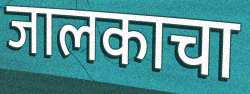
जालकाचा